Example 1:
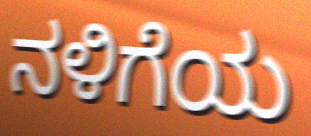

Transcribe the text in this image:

ನಳಿಗೆಯ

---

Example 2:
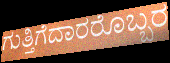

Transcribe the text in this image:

ಗುತ್ತಿಗೆದಾರರೊಬ್ಬರ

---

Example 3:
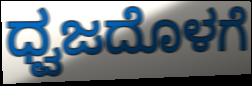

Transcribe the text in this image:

ಧ್ವಜದೊಳಗೆ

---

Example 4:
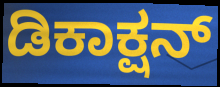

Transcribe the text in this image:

ಡಿಕಾಕ್ಷನ್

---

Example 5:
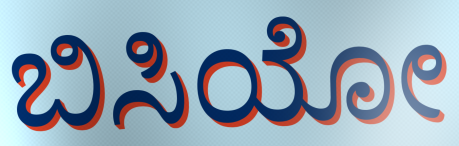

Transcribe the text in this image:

ಬಿಸಿಯೋ